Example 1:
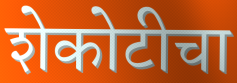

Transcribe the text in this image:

शेकोटीचा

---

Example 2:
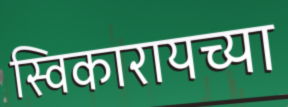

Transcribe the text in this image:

स्विकारायच्या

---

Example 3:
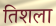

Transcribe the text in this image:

तिशला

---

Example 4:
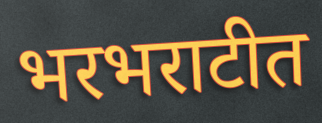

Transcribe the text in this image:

भरभराटीत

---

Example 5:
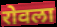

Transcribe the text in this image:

रोवला